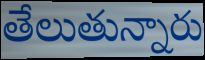
తేలుతున్నారు